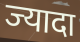
ज्‍यादा